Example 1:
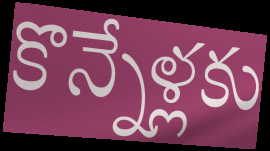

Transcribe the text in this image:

కొన్నేళ్లకు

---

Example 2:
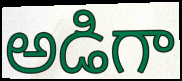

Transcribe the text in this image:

అడిగా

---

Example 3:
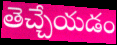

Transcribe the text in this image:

తెచ్చేయడం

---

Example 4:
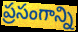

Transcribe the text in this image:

ప్రసంగాన్ని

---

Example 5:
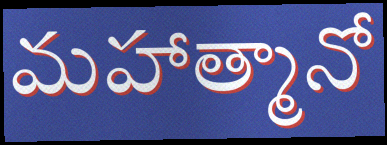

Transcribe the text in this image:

మహాత్మానో